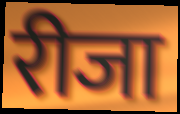
रीजा